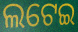
ଲଟେଇ